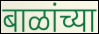
बाळांच्या